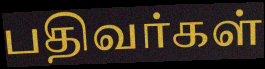
பதிவர்கள்